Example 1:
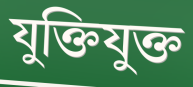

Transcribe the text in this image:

যুক্তিযুক্ত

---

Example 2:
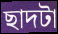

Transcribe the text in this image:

ছাদটা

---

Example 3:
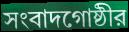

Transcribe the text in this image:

সংবাদগোষ্ঠীর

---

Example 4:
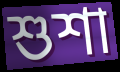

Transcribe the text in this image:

শুশা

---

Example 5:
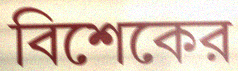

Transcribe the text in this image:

বিশেকের